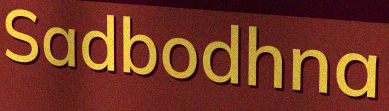
Sadbodhna